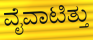
ವೈವಾಟಿತ್ತು